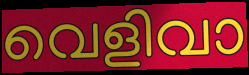
വെളിവാ